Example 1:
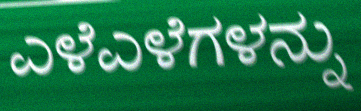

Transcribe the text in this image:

ಎಳೆಎಳೆಗಳನ್ನು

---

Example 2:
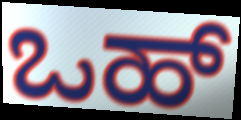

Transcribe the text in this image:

ಒಹ್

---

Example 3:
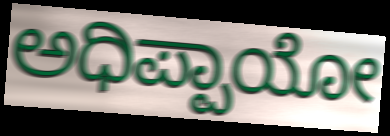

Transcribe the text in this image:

ಅಧಿಪ್ಪಾಯೋ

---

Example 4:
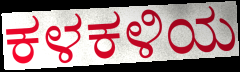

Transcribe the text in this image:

ಕಳಕಳಿಯ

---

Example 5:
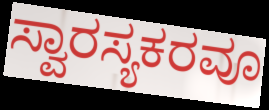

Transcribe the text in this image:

ಸ್ವಾರಸ್ಯಕರವೂ